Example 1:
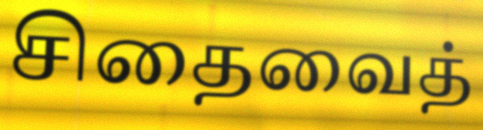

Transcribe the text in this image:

சிதைவைத்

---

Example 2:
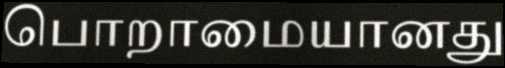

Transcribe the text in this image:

பொறாமையானது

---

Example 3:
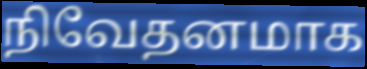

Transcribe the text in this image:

நிவேதனமாக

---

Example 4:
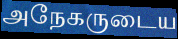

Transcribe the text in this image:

அநேகருடைய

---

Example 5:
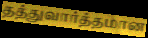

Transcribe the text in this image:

தத்துவார்த்தமான